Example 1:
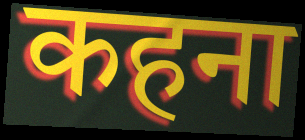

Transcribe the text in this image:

कहना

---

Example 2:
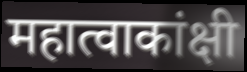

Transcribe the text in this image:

महात्वाकांक्षी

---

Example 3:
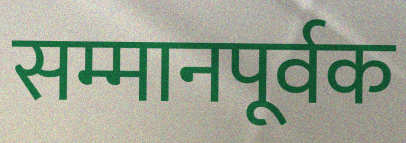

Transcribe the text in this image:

सम्मानपूर्वक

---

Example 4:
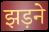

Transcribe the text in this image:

झड़ने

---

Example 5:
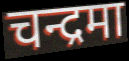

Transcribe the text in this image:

चन्द्रमा